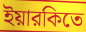
ইয়ারকিতে